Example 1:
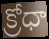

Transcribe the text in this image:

క్రోధా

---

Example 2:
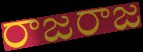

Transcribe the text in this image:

రాజరాజ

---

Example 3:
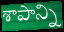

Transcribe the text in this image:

శాపాన్ని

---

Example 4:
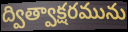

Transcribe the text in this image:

ద్విత్వాక్షరమును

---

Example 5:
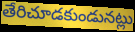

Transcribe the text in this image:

తేరిచూడకుండునట్లు